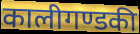
कालीगण्डकी